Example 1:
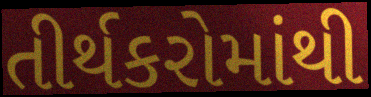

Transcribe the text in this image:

તીર્થકરોમાંથી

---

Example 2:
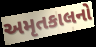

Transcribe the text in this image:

અમૃતકાલનો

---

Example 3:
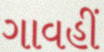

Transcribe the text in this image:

ગાવહીં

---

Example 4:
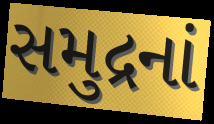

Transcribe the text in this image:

સમુદ્રનાં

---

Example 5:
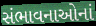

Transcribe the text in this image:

સંભાવનાઓનાં